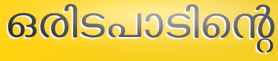
ഒരിടപാടിന്റെ